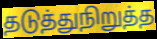
தடுத்துநிறுத்த